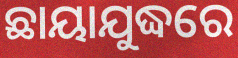
ଛାୟାଯୁଦ୍ଧରେ